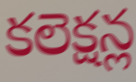
కలెక్షన్ల